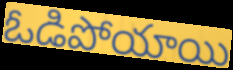
ఓడిపోయాయి